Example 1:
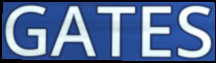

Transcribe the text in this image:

GATES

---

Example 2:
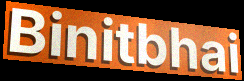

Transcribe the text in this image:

Binitbhai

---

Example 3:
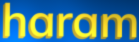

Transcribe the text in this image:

haram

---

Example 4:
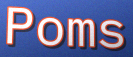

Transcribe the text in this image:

Poms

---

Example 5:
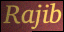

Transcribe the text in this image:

Rajib